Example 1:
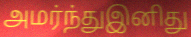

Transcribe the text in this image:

அமர்ந்துஇனிது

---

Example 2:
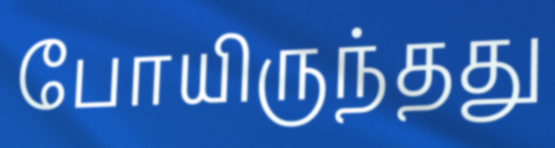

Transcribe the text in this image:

போயிருந்தது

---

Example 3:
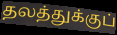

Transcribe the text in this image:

தலத்துக்குப்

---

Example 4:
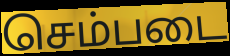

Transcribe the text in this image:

செம்படை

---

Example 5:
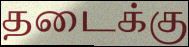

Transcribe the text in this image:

தடைக்கு